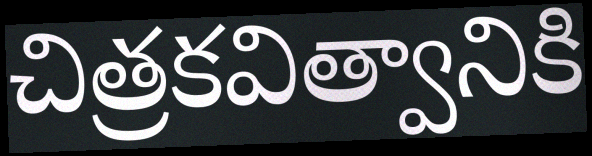
చిత్రకవిత్వానికి